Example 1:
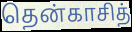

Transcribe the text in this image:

தென்காசித்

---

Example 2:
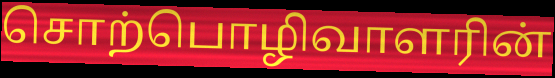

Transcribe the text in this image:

சொற்பொழிவாளரின்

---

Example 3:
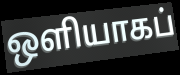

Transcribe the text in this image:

ஒளியாகப்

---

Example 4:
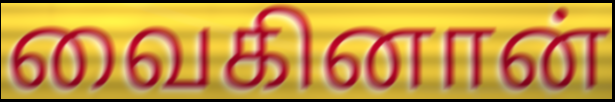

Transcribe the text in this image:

வைகினான்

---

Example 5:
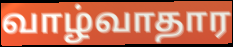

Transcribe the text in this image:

வாழ்வாதார